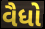
વૈધો